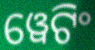
ୱେଟିଂ